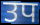
उप